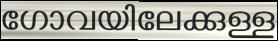
ഗോവയിലേക്കുള്ള